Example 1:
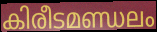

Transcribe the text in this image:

കിരീടമണ്ഡലം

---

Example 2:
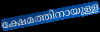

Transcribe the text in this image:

ക്ഷേമത്തിനായുള്ള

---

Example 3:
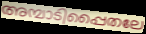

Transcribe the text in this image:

അമ്പാടിപ്പൈതലേ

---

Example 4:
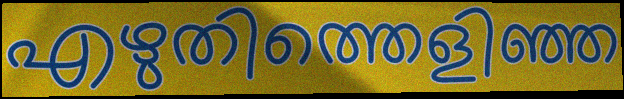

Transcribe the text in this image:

എഴുതിത്തെളിഞ്ഞ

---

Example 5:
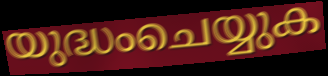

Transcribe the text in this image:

യുദ്ധംചെയ്യുക